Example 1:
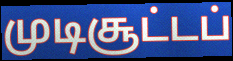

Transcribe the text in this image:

முடிசூட்டப்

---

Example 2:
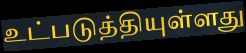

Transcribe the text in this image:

உட்படுத்தியுள்ளது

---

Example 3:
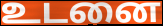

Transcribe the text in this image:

உடனை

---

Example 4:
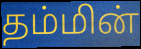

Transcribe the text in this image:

தம்மின்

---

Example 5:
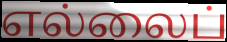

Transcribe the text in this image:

எல்லைப்